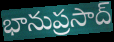
భానుప్రసాద్